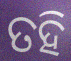
ତହି